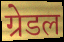
ग्रेडल